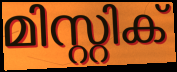
മിസ്റ്റിക്